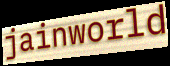
jainworld